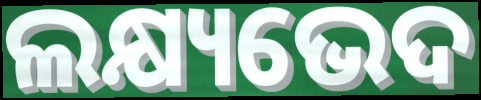
ଲକ୍ଷ୍ୟଭେଦ